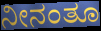
ನೀನಂತೂ